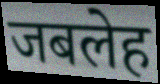
जबलेह